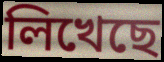
লিখেছে